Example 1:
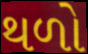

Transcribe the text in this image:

થળો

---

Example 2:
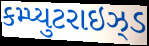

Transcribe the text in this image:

કમ્પ્યુટરાઇઝ્ડ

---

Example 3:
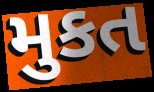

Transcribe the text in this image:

મુકત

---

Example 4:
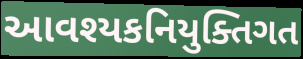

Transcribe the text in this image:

આવશ્યકનિયુક્તિગત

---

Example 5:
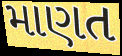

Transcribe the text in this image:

માણત